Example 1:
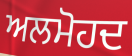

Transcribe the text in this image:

ਅਲਮੋਹਦ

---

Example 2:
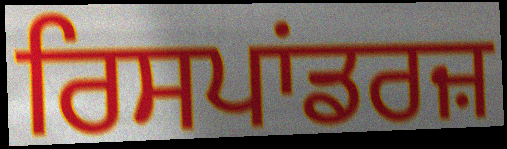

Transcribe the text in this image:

ਰਿਸਪਾਂਡਰਜ਼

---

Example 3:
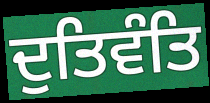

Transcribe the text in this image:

ਦੁਤਿਵੰਤਿ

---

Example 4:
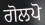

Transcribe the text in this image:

ਗੋਲਪੋ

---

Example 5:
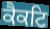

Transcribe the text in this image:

ਕੈਕਟਿ